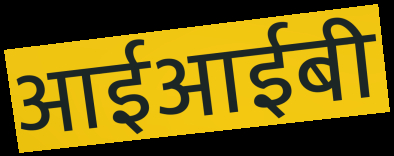
आईआईबी